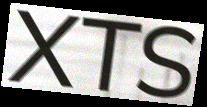
XTS